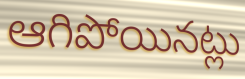
ఆగిపోయినట్లు